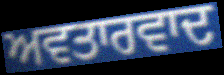
ਅਵਤਾਰਵਾਦ